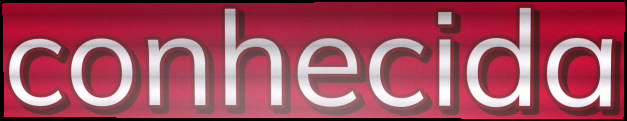
conhecida